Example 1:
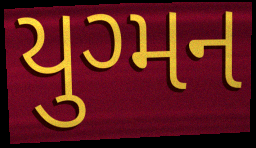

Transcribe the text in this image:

યુગ્મન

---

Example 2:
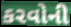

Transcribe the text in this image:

કરવોની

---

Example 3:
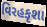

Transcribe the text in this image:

વિરહકૃશા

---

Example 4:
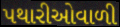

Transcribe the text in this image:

પથારીઓવાળી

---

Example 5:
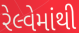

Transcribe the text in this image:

રેલ્વેમાંથી